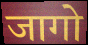
जागो